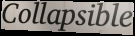
Collapsible